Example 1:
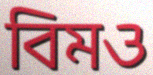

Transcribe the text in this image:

বিমও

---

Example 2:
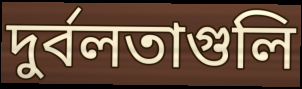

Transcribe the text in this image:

দুর্বলতাগুলি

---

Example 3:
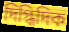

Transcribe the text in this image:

দিগ্ধিদিক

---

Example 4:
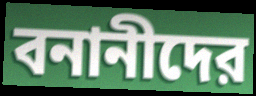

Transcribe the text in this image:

বনানীদের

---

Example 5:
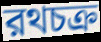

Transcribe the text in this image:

রথচক্র